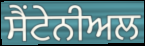
ਸੈਂਟੇਨੀਅਲ